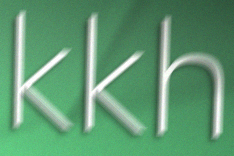
kkh